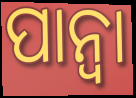
ପାନ୍ଵା